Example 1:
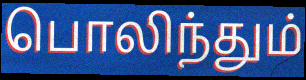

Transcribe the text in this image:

பொலிந்தும்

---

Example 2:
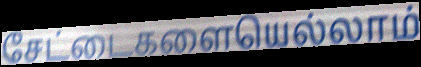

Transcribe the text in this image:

சேட்டைகளையெல்லாம்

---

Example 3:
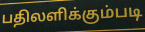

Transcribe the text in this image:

பதிலளிக்கும்படி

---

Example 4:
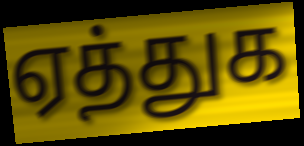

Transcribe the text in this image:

ஏத்துக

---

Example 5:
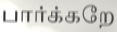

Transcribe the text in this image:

பார்க்கறே